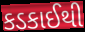
કડકાઈથી